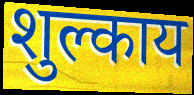
शुल्काय